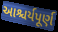
આશ્ચર્યપૂર્ણ